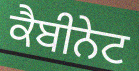
ਕੈਬੀਨੇਟ